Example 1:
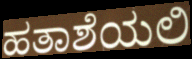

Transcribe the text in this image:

ಹತಾಶೆಯಲಿ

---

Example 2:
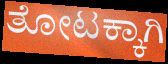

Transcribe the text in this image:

ತೋಟಕ್ಕಾಗಿ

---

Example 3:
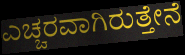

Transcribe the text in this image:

ಎಚ್ಚರವಾಗಿರುತ್ತೇನೆ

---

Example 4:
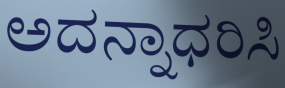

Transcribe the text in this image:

ಅದನ್ನಾಧರಿಸಿ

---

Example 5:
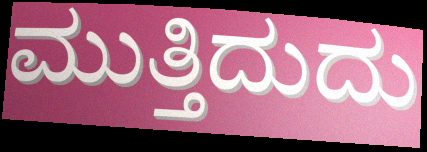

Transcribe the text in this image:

ಮುತ್ತಿದುದು